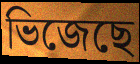
ভিজেছে